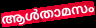
ആൾതാമസം